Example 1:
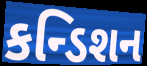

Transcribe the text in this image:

કન્ડિશન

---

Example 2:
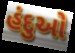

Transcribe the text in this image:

હંદુઓ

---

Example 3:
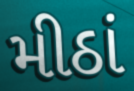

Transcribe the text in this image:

મીઠાં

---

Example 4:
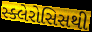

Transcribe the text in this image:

સ્ક્લેરોસિસથી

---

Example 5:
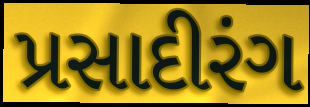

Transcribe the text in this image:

પ્રસાદીરંગ